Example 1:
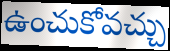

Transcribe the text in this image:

ఉంచుకోవచ్చు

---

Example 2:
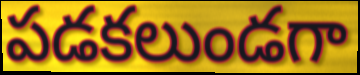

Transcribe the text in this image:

పడకలుండగా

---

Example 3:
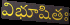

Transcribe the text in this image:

విభూషితః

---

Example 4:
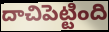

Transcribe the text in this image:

దాచిపెట్టింది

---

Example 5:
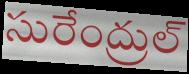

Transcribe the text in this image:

సురేంద్రుల్